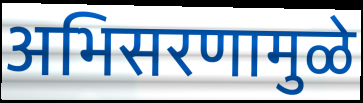
अभिसरणामुळे